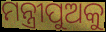
ମନ୍ତ୍ରୀପୁଅକୁ